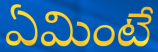
ఏమింటే